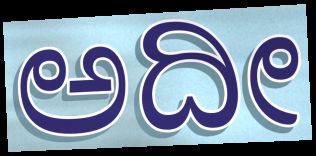
ಅದೀ